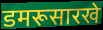
डमरूसारखे